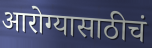
आरोग्यासाठीचं